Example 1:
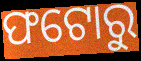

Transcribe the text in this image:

ଫଟୋରୁ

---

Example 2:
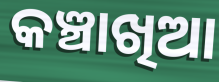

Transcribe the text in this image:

କଞ୍ଚାଖିଆ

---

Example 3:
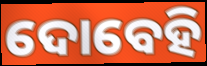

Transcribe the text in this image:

ଦୋବେହି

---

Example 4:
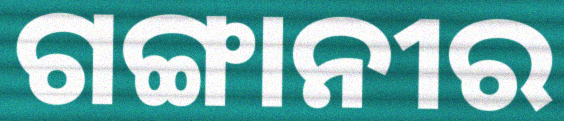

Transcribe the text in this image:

ଗଙ୍ଗାନୀର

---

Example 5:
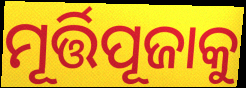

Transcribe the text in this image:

ମୂର୍ତ୍ତିପୂଜାକୁ